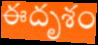
ఈదృశం